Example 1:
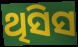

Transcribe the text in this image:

ଥିସିସ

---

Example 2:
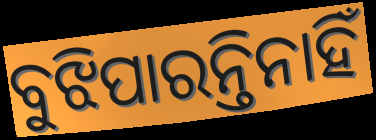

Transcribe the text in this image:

ବୁଝିପାରନ୍ତିନାହିଁ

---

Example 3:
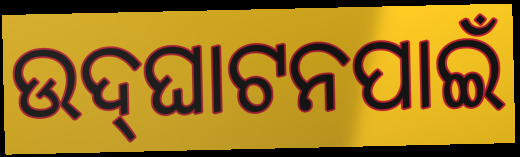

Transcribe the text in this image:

ଉଦ୍‌ଘାଟନପାଇଁ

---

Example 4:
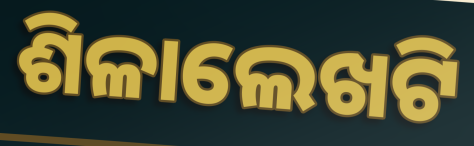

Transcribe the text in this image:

ଶିଳାଲେଖଟି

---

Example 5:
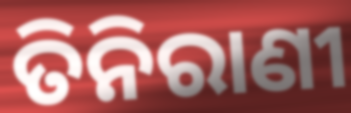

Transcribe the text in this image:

ତିନିରାଣୀ